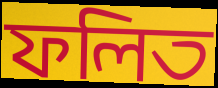
ফলিত